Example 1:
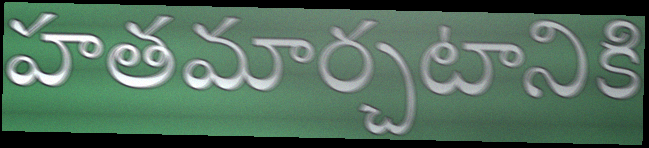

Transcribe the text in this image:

హతమార్చటానికి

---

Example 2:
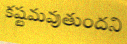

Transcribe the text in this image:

కష్టమవుతుందని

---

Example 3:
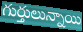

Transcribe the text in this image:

గుర్తులున్నాయి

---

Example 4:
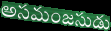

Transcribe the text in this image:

అసమంజసుడు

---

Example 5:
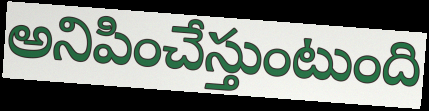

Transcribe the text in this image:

అనిపించేస్తుంటుంది